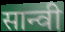
सान्वी